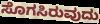
ಸೊಗಸಿರುವುದು